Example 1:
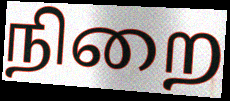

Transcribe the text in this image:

நிறை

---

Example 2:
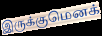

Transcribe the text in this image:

இருக்குமெனக்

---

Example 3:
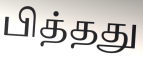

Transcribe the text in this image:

பித்தது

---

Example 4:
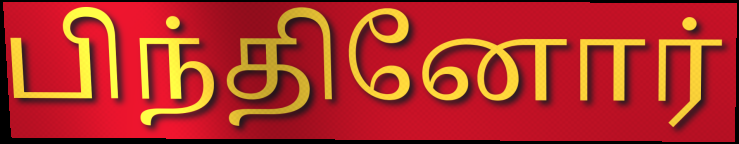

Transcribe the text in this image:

பிந்தினோர்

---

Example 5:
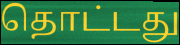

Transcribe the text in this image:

தொட்டது